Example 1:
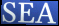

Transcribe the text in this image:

SEA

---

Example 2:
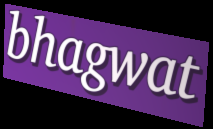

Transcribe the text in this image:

bhagwat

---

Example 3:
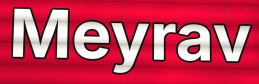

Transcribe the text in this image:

Meyrav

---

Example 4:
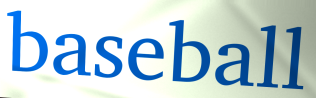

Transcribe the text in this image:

baseball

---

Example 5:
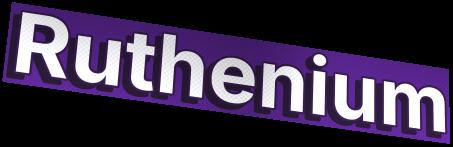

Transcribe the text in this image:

Ruthenium